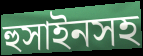
হুসাইনসহ